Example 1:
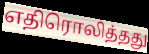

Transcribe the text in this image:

எதிரொலித்தது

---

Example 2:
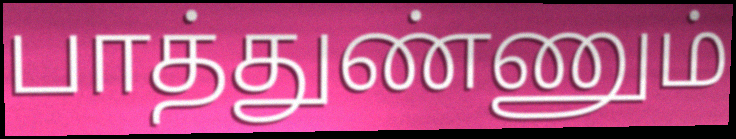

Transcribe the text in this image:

பாத்துண்ணும்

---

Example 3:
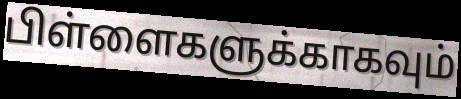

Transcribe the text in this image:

பிள்ளைகளுக்காகவும்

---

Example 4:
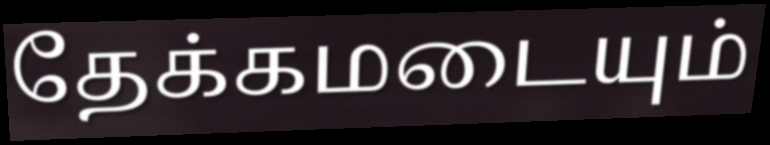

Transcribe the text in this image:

தேக்கமடையும்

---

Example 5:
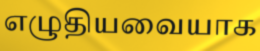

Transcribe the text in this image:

எழுதியவையாக